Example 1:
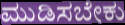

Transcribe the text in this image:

ಮುಡಿಸಬೇಕು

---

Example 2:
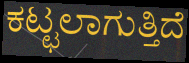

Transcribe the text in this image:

ಕಟ್ಟಲಾಗುತ್ತಿದೆ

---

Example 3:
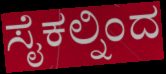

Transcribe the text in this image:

ಸೈಕಲ್ನಿಂದ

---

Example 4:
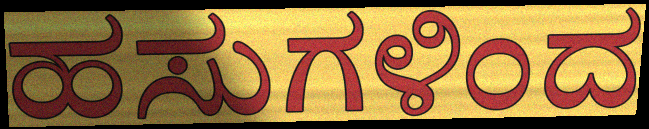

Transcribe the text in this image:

ಹಸುಗಳಿಂದ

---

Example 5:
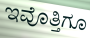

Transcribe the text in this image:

ಇವೊತ್ತಿಗೂ